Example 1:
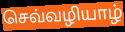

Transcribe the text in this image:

செவ்வழியாழ்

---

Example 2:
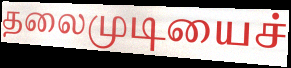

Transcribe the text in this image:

தலைமுடியைச்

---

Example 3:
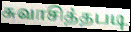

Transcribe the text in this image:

சுவாசித்தபடி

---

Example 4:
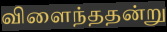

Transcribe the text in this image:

விளைந்ததன்று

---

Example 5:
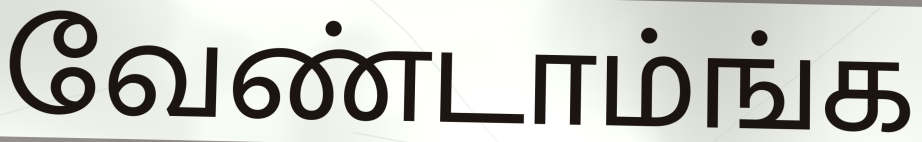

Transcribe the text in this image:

வேண்டாம்ங்க